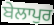
ਬੇਲਾਪੁਰ